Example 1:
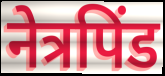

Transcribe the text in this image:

नेत्रपिंड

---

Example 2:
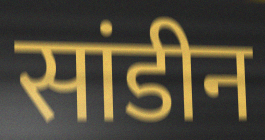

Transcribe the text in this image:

सांडीन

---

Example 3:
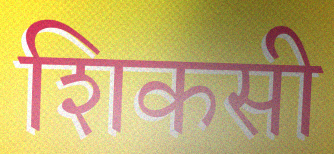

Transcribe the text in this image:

शिकसी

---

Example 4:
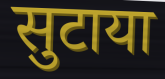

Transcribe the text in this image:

सुटाया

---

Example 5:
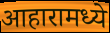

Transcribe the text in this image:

आहारामध्ये